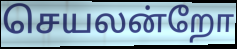
செயலன்றோ